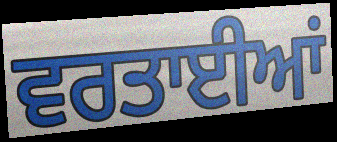
ਵਰਤਾਈਆਂ